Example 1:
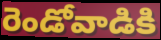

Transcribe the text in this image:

రెండోవాడికి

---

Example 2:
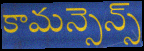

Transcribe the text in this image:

కామన్సెన్స్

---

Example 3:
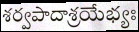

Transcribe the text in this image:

శర్వపాదాశ్రయేభ్యః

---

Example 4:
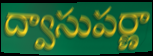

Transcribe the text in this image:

ద్వాసుపర్ణా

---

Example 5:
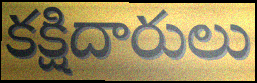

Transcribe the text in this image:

కక్షిదారులు